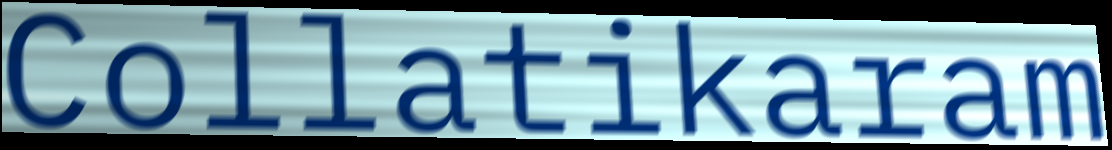
Collatikaram